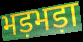
भड़भड़ा